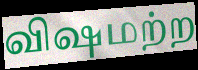
விஷமற்ற